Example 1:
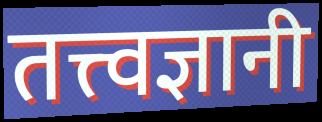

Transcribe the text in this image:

तत्त्वज्ञानी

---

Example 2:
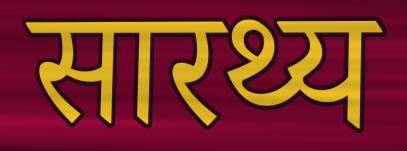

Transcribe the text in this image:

सारथ्य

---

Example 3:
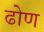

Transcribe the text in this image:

ढोण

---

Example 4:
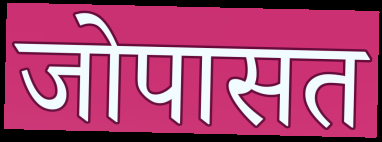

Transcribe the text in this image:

जोपासत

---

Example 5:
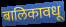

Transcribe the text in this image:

बालिकावधू